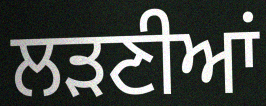
ਲੜਣੀਆਂ